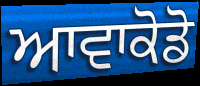
ਆਵਾਕੋਡੋ